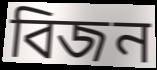
বিজন